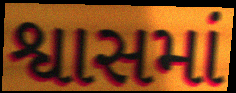
શ્વાસમાં